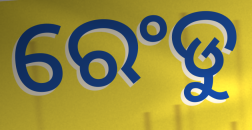
ରେଂଡୁ